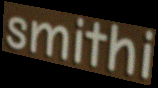
smithi